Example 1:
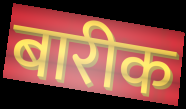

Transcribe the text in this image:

बारीक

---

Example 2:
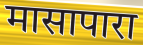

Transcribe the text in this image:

मासापारा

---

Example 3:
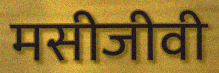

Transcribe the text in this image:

मसीजीवी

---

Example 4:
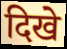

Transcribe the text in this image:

दिखे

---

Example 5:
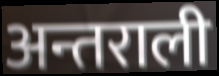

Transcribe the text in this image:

अन्तराली